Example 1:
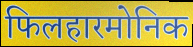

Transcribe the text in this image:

फिलहारमोनिक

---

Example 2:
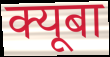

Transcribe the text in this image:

क्यूबा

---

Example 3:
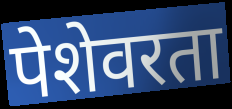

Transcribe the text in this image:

पेशेवरता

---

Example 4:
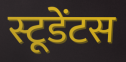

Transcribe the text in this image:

स्टूडेंटस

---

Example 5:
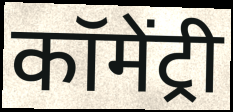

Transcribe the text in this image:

कॉमेंट्री